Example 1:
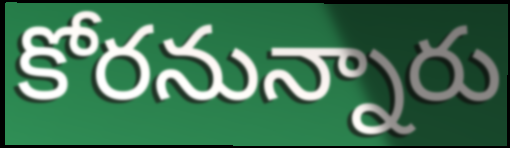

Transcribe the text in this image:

కోరనున్నారు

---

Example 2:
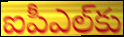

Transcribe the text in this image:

ఐపీఎల్‌కు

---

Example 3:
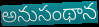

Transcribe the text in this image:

అనుసంథాన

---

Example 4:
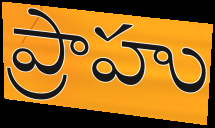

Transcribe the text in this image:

ప్రాహు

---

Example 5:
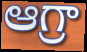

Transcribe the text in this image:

ఆగ్రా